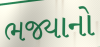
ભજ્યાનો